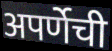
अपर्णेची